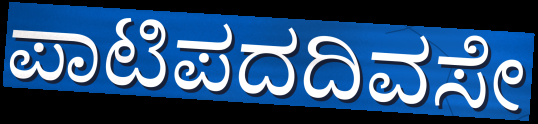
ಪಾಟಿಪದದಿವಸೇ